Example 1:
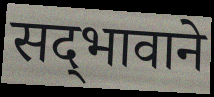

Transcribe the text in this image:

सद्‌भावाने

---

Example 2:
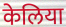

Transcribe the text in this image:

केलिया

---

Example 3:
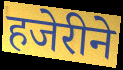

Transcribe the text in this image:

हजेरीने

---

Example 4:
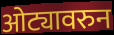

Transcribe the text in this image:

ओट्यावरुन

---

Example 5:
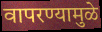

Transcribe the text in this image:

वापरण्यामुळे